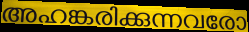
അഹങ്കരിക്കുന്നവരോ